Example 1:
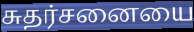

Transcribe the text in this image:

சுதர்சனையை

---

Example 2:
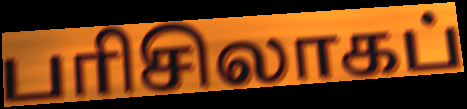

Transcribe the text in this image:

பரிசிலாகப்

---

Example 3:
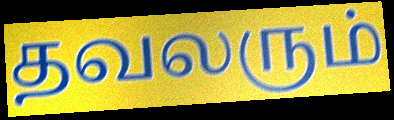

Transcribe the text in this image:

தவலரும்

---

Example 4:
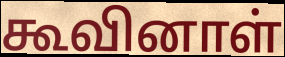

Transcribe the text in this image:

கூவினாள்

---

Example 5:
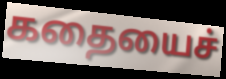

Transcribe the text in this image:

கதையைச்